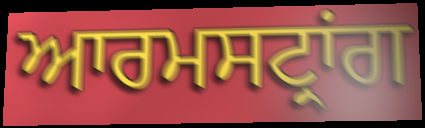
ਆਰਮਸਟ੍ਰਾਂਗ